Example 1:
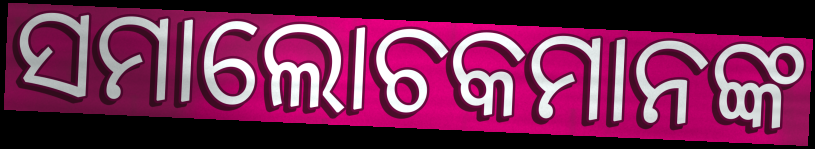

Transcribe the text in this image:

ସମାଲୋଚକମାନଙ୍କ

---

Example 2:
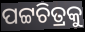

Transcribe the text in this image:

ପଟ୍ଟଚିତ୍ରକୁ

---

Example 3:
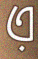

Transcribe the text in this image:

ଏ଼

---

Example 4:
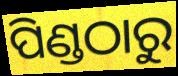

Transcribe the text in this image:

ପିଣ୍ଡଠାରୁ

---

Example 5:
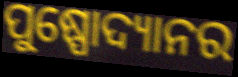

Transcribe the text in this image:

ପୁଷ୍ପୋଦ୍ୟାନର